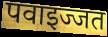
पवाइज्जत